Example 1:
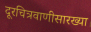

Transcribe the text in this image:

दूरचित्रवाणीसारख्या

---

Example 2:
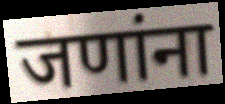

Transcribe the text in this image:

जणांना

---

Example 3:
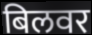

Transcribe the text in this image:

बिलवर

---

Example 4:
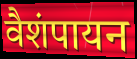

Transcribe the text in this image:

वैशंपायन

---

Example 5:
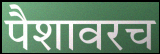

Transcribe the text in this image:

पैशावरच